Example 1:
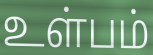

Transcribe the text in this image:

உள்பம்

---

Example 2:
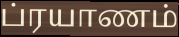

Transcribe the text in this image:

ப்ரயாணம்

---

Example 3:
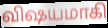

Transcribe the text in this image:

விஷயமாகி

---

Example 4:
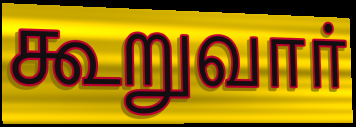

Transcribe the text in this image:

கூறுவார்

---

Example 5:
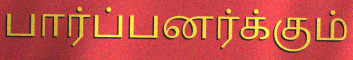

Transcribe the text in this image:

பார்ப்பனர்க்கும்